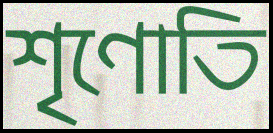
শৃণোতি